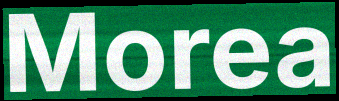
Morea